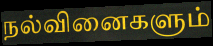
நல்வினைகளும்